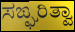
ಸಙ್ಘರಿತ್ವಾ